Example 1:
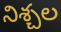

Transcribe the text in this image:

నిశ్చల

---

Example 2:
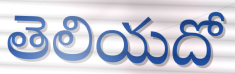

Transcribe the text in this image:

తెలియదో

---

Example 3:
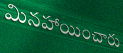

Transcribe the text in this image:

మినహాయించారు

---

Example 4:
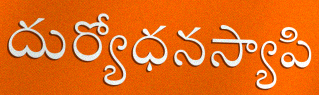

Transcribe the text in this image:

దుర్యోధనస్యాపి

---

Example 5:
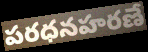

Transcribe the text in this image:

పరధనహరణే